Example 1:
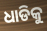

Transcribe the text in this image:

ଧାଡିକୁ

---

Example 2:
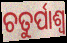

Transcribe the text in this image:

ଚତୁର୍ପାଶ୍ୱ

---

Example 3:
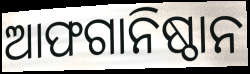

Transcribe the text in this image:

ଆଫଗାନିଷ୍ଠାନ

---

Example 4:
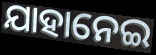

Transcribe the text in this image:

ଯାହାନେଇ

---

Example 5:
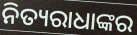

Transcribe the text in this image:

ନିତ୍ୟରାଧାଙ୍କର